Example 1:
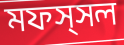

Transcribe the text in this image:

মফস্‌সল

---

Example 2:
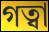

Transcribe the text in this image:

গত্বা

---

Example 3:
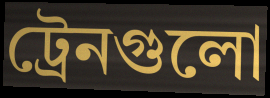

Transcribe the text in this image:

ট্রেনগুলো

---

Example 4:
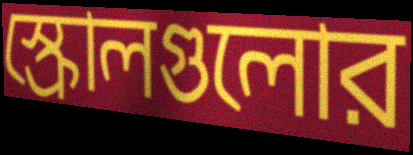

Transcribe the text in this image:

স্ক্রোলগুলোর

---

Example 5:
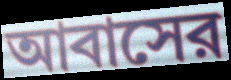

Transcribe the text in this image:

আবাসের